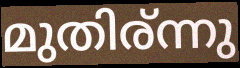
മുതിര്ന്നു